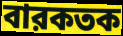
বারকতক